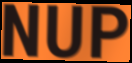
NUP